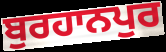
ਬੁਰਹਾਨਪੁਰ